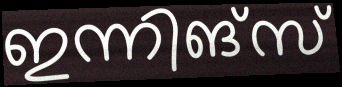
ഇന്നിങ്സ്